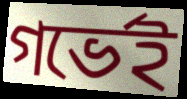
গর্ভেই